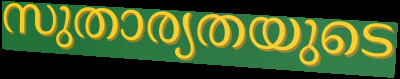
സുതാര്യതയുടെ